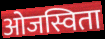
ओजस्विता